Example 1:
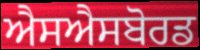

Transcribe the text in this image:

ਐਸਐਸਬੋਰਡ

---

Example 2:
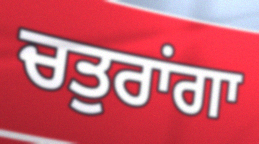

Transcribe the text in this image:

ਚਤੁਰਾਂਗਾ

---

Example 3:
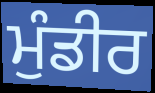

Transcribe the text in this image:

ਮੁੰਡੀਰ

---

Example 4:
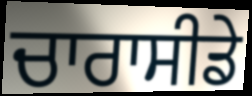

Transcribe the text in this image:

ਚਾਰਾਸੀਡੇ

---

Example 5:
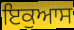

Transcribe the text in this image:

ਇਕੁਆਸ